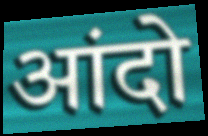
आंदो